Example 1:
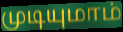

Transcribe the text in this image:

முடியுமாம்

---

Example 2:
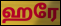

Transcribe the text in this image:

ஹரே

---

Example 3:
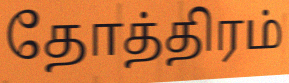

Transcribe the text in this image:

தோத்திரம்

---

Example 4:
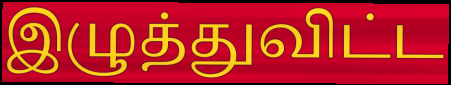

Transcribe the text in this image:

இழுத்துவிட்ட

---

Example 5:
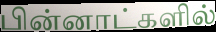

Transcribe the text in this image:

பின்னாட்களில்